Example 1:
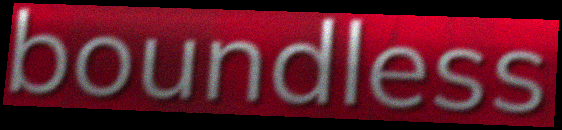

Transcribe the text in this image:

boundless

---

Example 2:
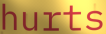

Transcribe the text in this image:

hurts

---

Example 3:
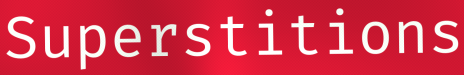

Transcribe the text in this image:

Superstitions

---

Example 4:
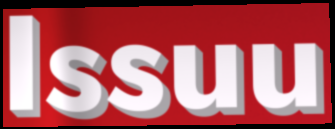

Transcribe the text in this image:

Issuu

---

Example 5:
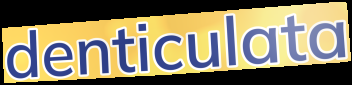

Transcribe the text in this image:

denticulata